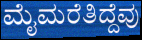
ಮೈಮರೆತಿದ್ದೆವು